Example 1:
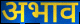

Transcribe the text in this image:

अभाव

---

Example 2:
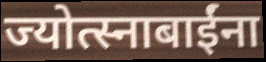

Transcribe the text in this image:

ज्योत्स्नाबाईंना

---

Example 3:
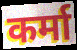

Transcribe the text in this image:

कर्मा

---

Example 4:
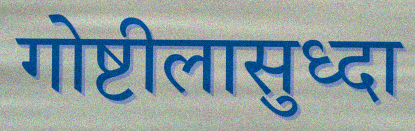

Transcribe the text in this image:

गोष्टीलासुध्दा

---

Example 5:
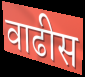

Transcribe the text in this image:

वाढीस